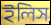
ইলিস